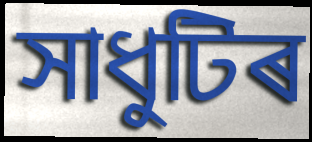
সাধুটিৰ